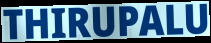
THIRUPALU